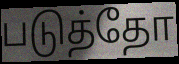
படுத்தோ